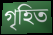
গৃহিত